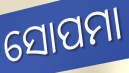
ସୋପମା